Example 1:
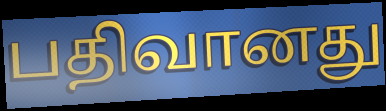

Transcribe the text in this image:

பதிவானது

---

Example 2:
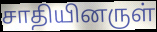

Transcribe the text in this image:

சாதியினருள்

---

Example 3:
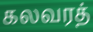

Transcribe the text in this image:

கலவரத்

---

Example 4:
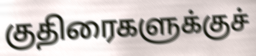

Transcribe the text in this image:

குதிரைகளுக்குச்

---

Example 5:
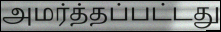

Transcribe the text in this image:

அமர்த்தப்பட்டது